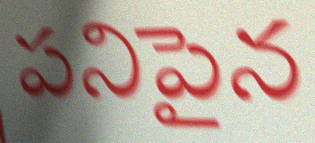
పనిపైన